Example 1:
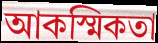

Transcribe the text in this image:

আকস্মিকতা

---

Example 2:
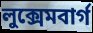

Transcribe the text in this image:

লুক্সেমবার্গ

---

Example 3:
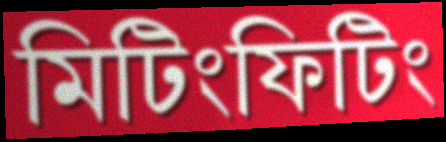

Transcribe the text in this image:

মিটিংফিটিং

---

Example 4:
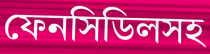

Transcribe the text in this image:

ফেনসিডিলসহ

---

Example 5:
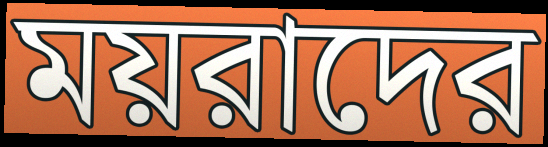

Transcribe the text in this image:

ময়রাদের